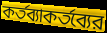
কর্তব্যাকর্তব্যের